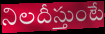
నిలదీస్తుంటే